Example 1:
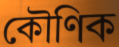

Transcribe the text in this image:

কৌণিক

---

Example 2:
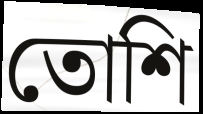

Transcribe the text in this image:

তোশি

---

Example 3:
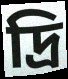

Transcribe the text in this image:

দ্রি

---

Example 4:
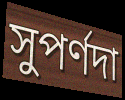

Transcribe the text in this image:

সুপর্ণদা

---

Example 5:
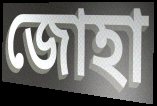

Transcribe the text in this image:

জোহা